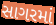
સાગરમાં